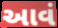
આવં